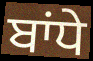
ਬਾਂਧੇ